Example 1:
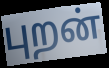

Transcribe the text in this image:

புறன்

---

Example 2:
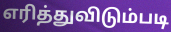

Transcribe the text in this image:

எரித்துவிடும்படி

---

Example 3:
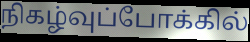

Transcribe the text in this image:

நிகழ்வுப்போக்கில்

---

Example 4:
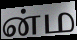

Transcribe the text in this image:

ன்ம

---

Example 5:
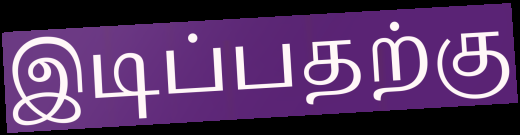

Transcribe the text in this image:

இடிப்பதற்கு